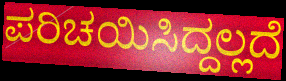
ಪರಿಚಯಿಸಿದ್ದಲ್ಲದೆ